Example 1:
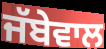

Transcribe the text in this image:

ਜੱਬੇਵਾਲ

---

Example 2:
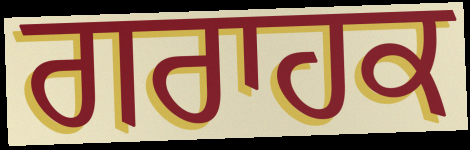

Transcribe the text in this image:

ਗਰਾਹਕ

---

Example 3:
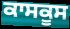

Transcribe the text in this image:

ਕਾਸਕੂਸ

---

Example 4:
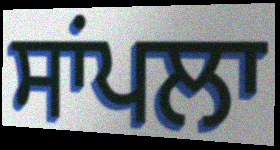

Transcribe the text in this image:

ਸਾਂਪਲਾ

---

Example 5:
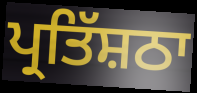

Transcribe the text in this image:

ਪ੍ਰਤਿੱਸ਼ਠਾ